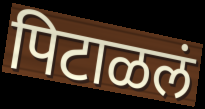
पिटाळलं